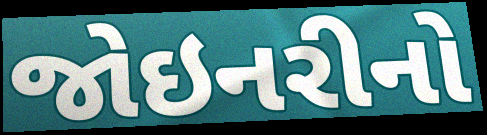
જોઇનરીનો